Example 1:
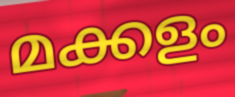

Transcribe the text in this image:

മക്കളം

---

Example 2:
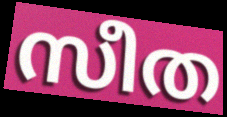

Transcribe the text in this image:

സീത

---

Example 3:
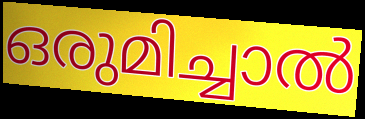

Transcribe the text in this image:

ഒരുമിച്ചാൽ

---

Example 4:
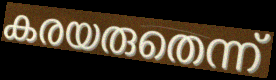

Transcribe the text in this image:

കരയരുതെന്ന്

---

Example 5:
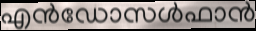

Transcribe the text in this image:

എൻഡോസൾഫാൻ